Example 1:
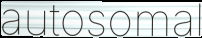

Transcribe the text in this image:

autosomal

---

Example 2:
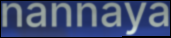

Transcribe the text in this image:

nannaya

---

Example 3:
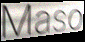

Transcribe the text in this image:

Maso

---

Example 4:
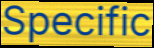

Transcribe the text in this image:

Specific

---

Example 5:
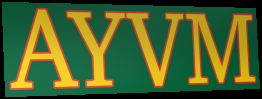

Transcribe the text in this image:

AYVM